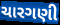
ચારગણી